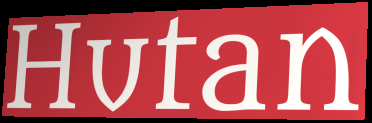
Hutan